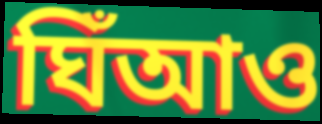
ঘিঁআও